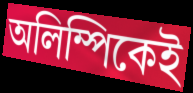
অলিম্পিকেই